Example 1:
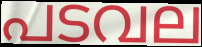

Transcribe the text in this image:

പടവല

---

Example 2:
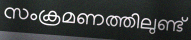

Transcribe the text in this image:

സംക്രമണത്തിലുണ്ട്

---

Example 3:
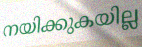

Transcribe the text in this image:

നയിക്കുകയില്ല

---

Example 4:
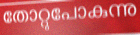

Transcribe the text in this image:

തോറ്റുപോകുന്നു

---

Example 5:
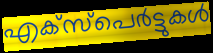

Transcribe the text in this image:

എക്സ്പെർട്ടുകൾ